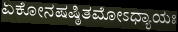
ಏಕೋನಷಷ್ಠಿತಮೋಽಧ್ಯಾಯಃ